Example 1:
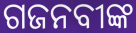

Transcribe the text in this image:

ଗଜନବୀଙ୍କ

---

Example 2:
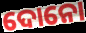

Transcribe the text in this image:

ଦୋନୋ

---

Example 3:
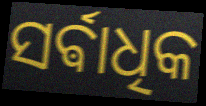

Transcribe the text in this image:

ସର୍ଵାଧିକ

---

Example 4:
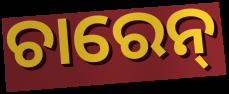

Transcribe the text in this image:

ଚାରେନ୍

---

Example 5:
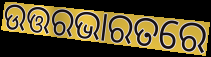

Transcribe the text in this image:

ଉତ୍ତରଭାରତରେ